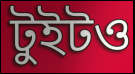
টুইটও